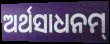
ଅର୍ଥସାଧନମ୍